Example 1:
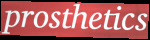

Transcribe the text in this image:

prosthetics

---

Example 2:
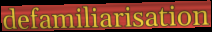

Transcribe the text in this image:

defamiliarisation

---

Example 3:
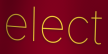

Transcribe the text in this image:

elect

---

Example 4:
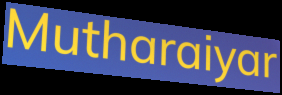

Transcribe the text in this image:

Mutharaiyar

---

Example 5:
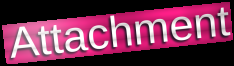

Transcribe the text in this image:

Attachment